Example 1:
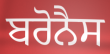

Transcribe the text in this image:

ਬਰੋਨੈਸ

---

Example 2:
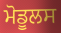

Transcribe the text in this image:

ਮੋਡੂਲਸ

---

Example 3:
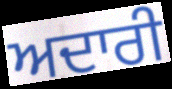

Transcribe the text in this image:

ਅਦਾਰੀ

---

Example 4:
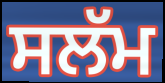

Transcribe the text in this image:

ਸਲੱਮ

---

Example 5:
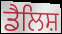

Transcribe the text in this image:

ਡੈਲਿਸ਼